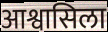
आश्वासिला